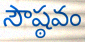
సౌష్ఠవం